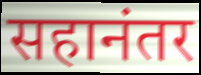
सहानंतर